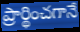
ప్రార్థించగానే